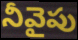
నీవైపు